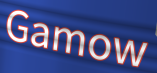
Gamow